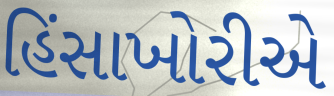
હિંસાખોરીએ